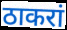
ठाकरां